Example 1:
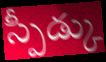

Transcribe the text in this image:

స్పీడ్కు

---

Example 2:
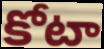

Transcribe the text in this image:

కోటా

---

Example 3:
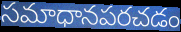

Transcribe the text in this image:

సమాధానపరచడం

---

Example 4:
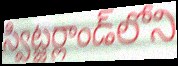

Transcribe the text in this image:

స్విట్జర్లాండ్‌లోని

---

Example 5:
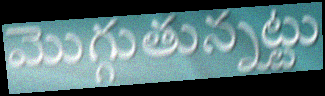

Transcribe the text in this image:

మొగ్గుతున్నట్టు